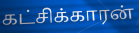
கட்சிக்காரன்